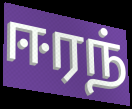
ஈரந்